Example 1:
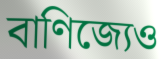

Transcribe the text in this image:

বাণিজ্যেও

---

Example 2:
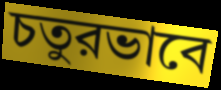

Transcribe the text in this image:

চতুরভাবে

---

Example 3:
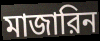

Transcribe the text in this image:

মাজারিন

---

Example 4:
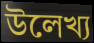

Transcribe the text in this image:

উলেখ্য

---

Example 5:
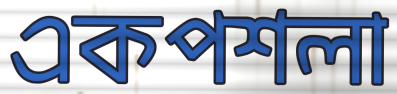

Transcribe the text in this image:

একপশলা